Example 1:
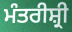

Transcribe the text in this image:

ਮੰਤਰੀਸ਼੍ਰੀ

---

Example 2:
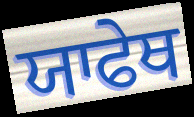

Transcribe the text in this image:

ਯਾਫੇਥ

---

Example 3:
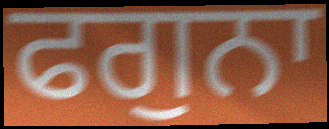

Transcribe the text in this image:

ਫਗੁਨਾ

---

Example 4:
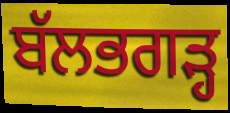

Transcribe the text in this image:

ਬੱਲਭਗੜ੍ਹ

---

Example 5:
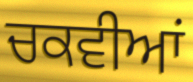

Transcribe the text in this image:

ਚਕਵੀਆਂ